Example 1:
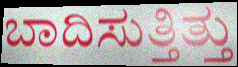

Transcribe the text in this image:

ಬಾದಿಸುತ್ತಿತ್ತು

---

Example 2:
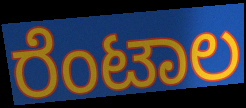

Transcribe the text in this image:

ರೆಂಟಾಲ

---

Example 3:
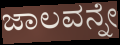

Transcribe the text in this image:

ಜಾಲವನ್ನೇ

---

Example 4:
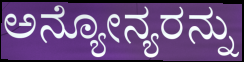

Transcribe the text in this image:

ಅನ್ಯೋನ್ಯರನ್ನು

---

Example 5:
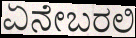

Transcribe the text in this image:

ಏನೇಬರಲಿ